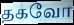
தகவோ